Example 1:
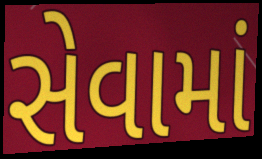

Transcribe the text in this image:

સેવામાં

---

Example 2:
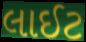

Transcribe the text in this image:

લાઈટ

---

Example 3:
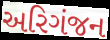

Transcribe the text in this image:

અરિગંજન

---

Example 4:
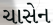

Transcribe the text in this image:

ચાસેન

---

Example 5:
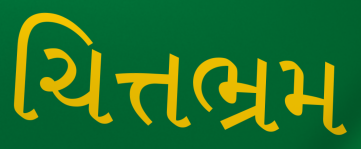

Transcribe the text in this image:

ચિત્તભ્રમ